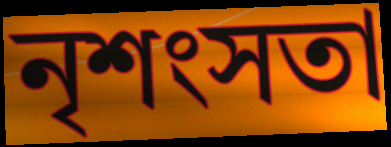
নৃশংসতা